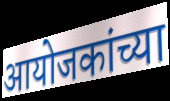
आयोजकांच्या